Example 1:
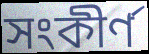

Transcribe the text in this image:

সংকীৰ্ণ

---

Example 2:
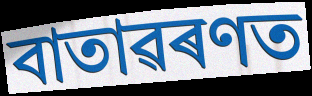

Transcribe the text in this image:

বাতাৱৰণত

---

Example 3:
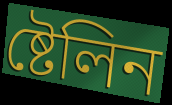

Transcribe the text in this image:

ষ্টেলিন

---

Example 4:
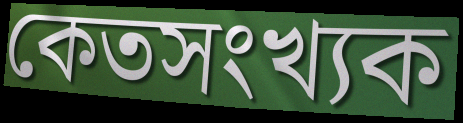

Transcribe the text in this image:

কেতসংখ্যক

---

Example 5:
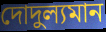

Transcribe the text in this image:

দোদুল্যমান